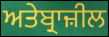
ਅਤੇਬ੍ਰਾਜ਼ੀਲ